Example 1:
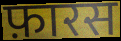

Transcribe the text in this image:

फ़ारस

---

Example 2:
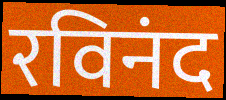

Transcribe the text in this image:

रविनंद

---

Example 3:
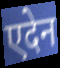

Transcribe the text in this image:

एदेन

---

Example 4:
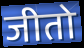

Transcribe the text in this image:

जीतो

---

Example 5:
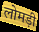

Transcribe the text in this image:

लोमड़ी